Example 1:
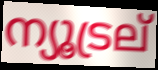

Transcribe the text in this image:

ന്യൂട്രല്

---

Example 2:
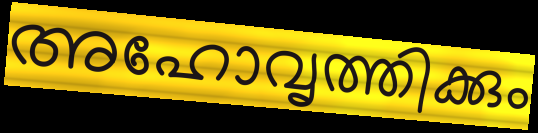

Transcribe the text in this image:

അഹോവൃത്തിക്കും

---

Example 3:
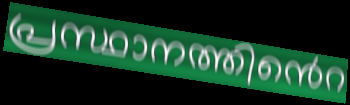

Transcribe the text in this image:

പ്രസ്ഥാനത്തിൻെറ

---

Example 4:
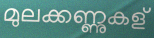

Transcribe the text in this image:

മുലക്കണ്ണുകള്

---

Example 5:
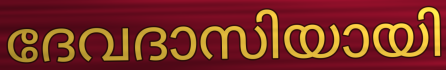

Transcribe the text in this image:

ദേവദാസിയായി